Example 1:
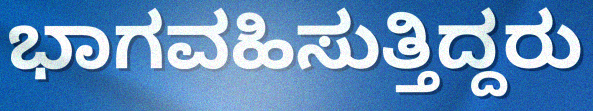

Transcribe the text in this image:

ಭಾಗವಹಿಸುತ್ತಿದ್ದರು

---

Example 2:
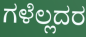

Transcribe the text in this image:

ಗಳೆಲ್ಲದರ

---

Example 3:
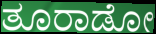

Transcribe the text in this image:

ತೂರಾಡೋ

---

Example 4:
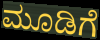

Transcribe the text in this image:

ಮೂಡಿಗೆ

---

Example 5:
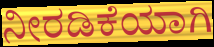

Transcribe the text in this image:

ನೀರಡಿಕೆಯಾಗಿ